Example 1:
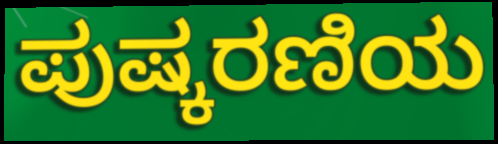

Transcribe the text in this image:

ಪುಷ್ಕರಣಿಯ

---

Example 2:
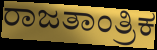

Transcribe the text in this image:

ರಾಜತಾಂತ್ರಿಕ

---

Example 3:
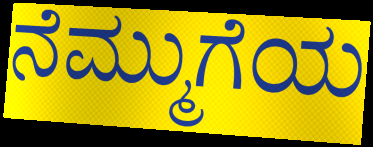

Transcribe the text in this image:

ನೆಮ್ಮುಗೆಯ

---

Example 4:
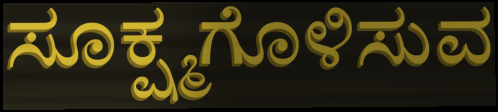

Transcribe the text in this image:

ಸೂಕ್ಷ್ಮಗೊಳಿಸುವ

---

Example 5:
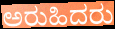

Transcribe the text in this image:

ಅರುಹಿದರು